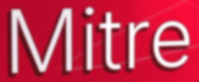
Mitre